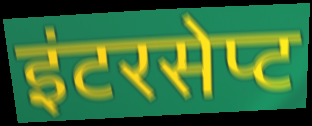
इंटरसेप्ट